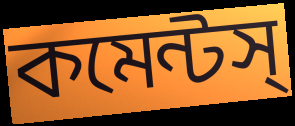
কমেন্টস্